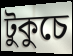
টুকুচে